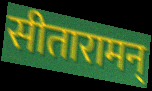
सीतारामन्